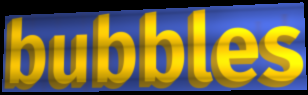
bubbles